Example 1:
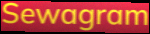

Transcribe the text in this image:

Sewagram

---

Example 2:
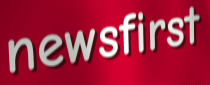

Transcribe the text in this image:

newsfirst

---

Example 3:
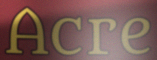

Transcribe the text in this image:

Acre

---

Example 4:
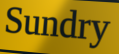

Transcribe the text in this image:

Sundry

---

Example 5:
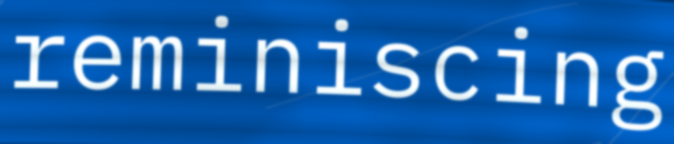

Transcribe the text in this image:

reminiscing